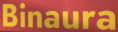
Binaura